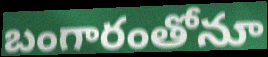
బంగారంతోనూ